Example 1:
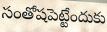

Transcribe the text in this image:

సంతోషపెట్టేందుకు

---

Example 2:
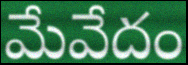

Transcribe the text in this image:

మేవేదం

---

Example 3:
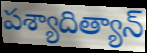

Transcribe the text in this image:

పశ్యాదిత్యాన్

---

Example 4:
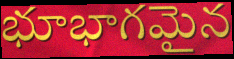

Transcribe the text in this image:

భూభాగమైన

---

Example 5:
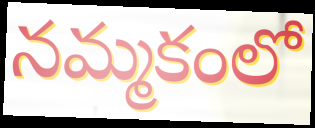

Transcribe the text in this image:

నమ్మకంలో